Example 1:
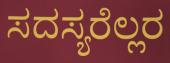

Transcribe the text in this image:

ಸದಸ್ಯರೆಲ್ಲರ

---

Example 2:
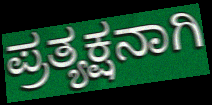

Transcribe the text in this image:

ಪ್ರತ್ಯಕ್ಷನಾಗಿ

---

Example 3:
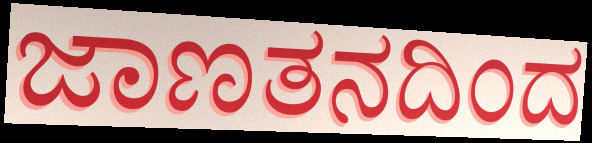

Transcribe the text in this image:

ಜಾಣತನದಿಂದ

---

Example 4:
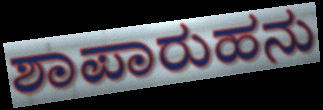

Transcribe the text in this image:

ಶಾಪಾರುಹನು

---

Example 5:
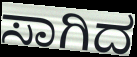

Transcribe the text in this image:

ಸಾಗಿದ